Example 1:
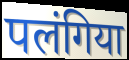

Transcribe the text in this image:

पलंगिया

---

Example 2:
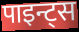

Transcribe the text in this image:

पाइन्ट्स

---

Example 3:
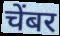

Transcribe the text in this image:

चेंबर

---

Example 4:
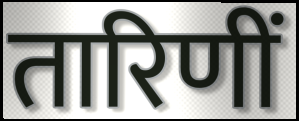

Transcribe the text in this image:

तारिणीं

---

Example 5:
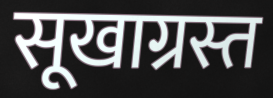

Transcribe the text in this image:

सूखाग्रस्‍त